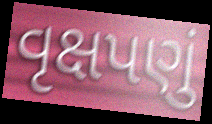
વૃક્ષપણું